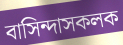
বাসিন্দাসকলক